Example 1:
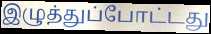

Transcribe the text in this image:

இழுத்துப்போட்டது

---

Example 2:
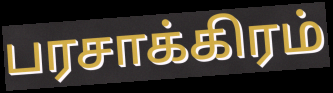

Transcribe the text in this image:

பரசாக்கிரம்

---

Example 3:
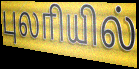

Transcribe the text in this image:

புலரியில்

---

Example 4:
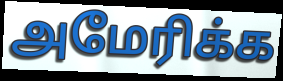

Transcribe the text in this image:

அமேரிக்க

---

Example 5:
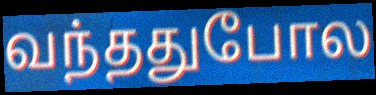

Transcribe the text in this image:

வந்ததுபோல